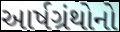
આર્ષગ્રંથોનો